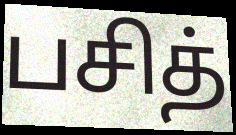
பசித்